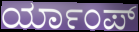
ರ್ಯಾಂಪ್